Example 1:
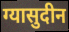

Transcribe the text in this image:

ग्यासुदीन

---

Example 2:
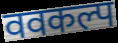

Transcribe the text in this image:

ववकल्प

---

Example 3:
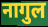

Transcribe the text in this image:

नागुल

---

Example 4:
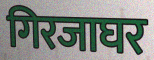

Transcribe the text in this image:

गिरजाघर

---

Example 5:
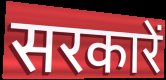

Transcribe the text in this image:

सरकारें